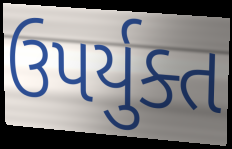
ઉપર્યુક્ત